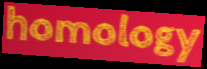
homology